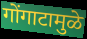
गोंगाटामुळे